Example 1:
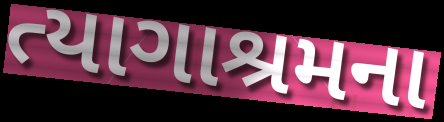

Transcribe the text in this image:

ત્યાગાશ્રમના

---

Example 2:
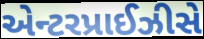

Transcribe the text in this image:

એન્ટરપ્રાઈઝીસે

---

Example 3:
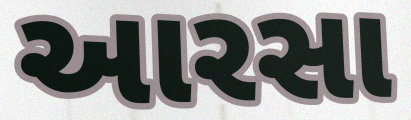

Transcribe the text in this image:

આરસા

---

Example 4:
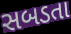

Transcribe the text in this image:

સબડતા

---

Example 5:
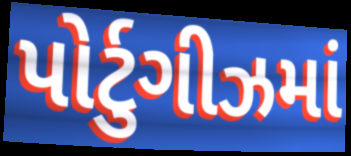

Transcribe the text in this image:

પોર્ટુગીઝમાં